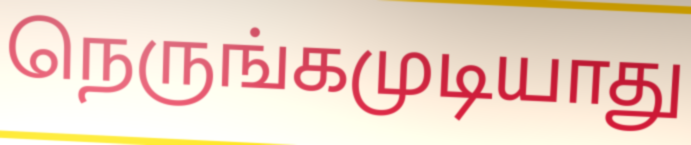
நெருங்கமுடியாது